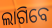
ଲାଗିବେ